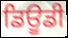
ਡਿਊਡੀ